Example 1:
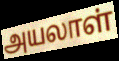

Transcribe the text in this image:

அயலாள்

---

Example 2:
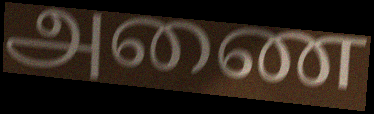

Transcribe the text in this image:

அணை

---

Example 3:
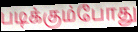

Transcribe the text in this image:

படிக்கும்போது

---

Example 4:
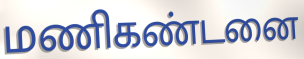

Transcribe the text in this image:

மணிகண்டனை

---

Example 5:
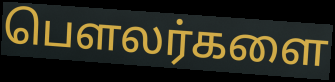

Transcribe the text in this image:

பௌலர்களை